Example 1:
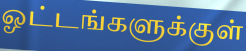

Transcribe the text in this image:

ஓட்டங்களுக்குள்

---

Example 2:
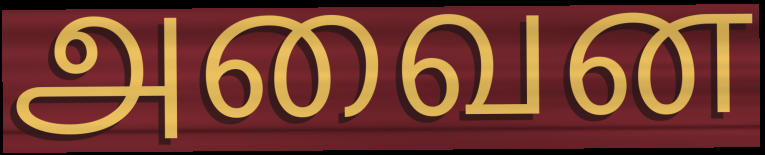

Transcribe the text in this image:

அவைன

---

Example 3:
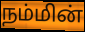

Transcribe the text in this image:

நம்மின்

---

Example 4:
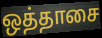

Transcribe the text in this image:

ஒத்தாசை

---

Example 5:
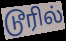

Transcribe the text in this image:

டூரில்